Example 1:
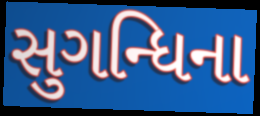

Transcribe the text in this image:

સુગન્ધિના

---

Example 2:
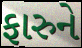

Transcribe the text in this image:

ફારુને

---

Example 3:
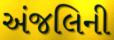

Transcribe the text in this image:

અંજલિની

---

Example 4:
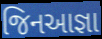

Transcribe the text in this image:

જિનઆજ્ઞા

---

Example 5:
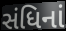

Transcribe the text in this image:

સંધિનાં